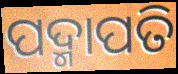
ପଦ୍ମାପତି